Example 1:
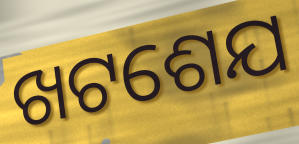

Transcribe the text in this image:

ଖଟଶେଯ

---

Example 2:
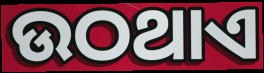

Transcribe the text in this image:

ଉଠଥାଏ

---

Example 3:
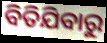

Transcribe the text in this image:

ବିତିଯିବାରୁ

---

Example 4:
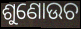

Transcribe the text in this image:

ଶୁଣୋଉଚ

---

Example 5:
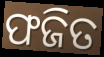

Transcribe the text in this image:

ଫଜିତ